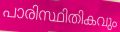
പാരിസ്ഥിതികവും